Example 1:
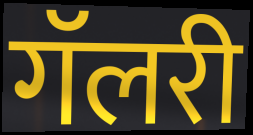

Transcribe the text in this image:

गॅलरी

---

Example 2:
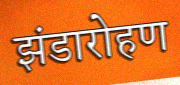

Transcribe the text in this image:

झंडारोहण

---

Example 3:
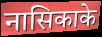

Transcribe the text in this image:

नासिकाके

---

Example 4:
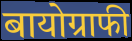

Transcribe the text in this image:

बायोग्राफी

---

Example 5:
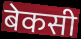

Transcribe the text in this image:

बेकसी